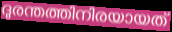
ദുരന്തത്തിനിരയായത്